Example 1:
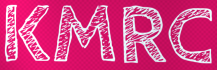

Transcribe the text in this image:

KMRC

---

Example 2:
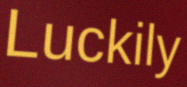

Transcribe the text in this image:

Luckily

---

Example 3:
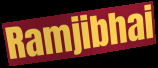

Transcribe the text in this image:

Ramjibhai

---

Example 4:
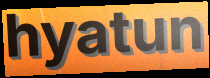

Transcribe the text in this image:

hyatun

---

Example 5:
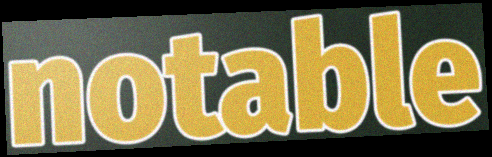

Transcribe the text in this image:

notable